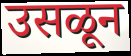
उसळून